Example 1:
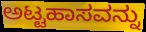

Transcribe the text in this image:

ಅಟ್ಟಹಾಸವನ್ನು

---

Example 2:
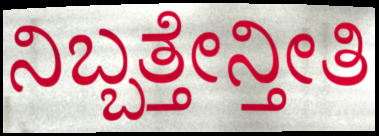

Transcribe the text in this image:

ನಿಬ್ಬತ್ತೇನ್ತೀತಿ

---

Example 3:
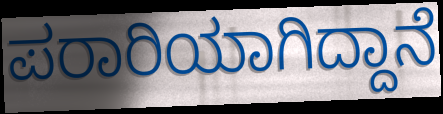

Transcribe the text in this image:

ಪರಾರಿಯಾಗಿದ್ದಾನೆ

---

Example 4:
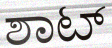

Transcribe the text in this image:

ಶಾಟ್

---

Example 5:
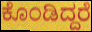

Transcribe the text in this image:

ಕೊಂಡಿದ್ದರೆ